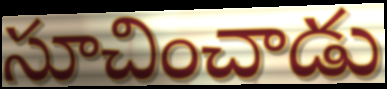
సూచించాడు